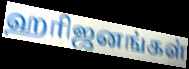
ஹரிஜனங்கள்